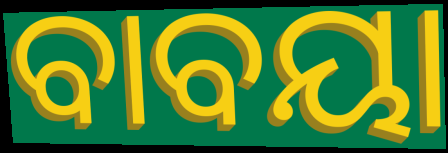
ବାବୟା